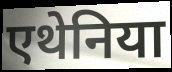
एथेनिया